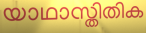
യാഥാസ്തിതിക